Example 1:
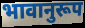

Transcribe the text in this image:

भावानुरूप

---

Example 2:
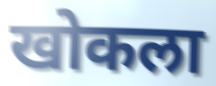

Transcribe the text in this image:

खोकला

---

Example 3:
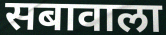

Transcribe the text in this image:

सबावाला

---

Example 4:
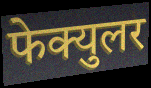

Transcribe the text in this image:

फेक्युलर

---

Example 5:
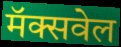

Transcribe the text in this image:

मॅक्सवेल